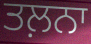
ਤਲ਼ਨਾ